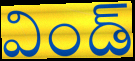
విండ్